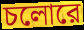
চলোরে